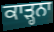
ਕਾੜ੍ਹਨਾ